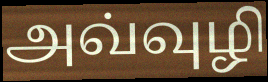
அவ்வுழி